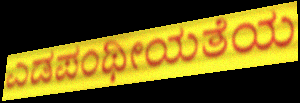
ಎಡಪಂಥೀಯತೆಯ